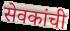
सेवकांची